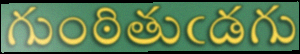
గుంఠితుఁడగు